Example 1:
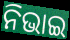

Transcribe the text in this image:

ନିଭାଇ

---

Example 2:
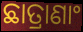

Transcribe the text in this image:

ଛାତ୍ରାଣାଂ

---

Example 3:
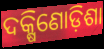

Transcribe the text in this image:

ଦକ୍ଷିଣୋଡ଼ିଶା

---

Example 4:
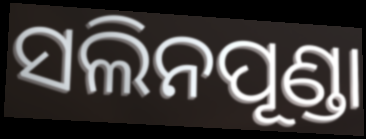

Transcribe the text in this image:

ସଲିନପୂଣ୍ଡା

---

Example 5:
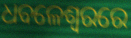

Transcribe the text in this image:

ଧବଳେଶ୍ଵରରେ